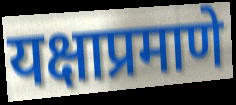
यक्षाप्रमाणे